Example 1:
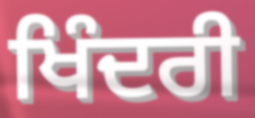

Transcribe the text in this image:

ਖਿੰਦਰੀ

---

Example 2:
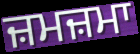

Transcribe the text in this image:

ਜ਼ਮਜ਼ਮਾ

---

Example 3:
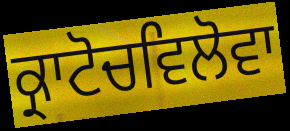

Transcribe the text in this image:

ਕ੍ਰਾਟੋਚਵਿਲੋਵਾ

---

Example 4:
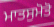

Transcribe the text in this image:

ਮਾਤਸੁਮੋਤੋ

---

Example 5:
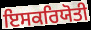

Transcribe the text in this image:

ਇਸਕਰਿਯੋਤੀ